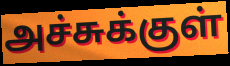
அச்சுக்குள்